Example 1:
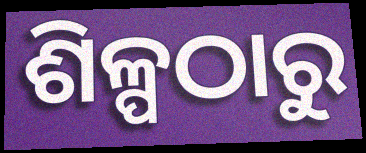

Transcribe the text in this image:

ଶିଳ୍ପଠାରୁ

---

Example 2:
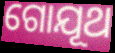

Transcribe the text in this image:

ଗୋଯୂଥ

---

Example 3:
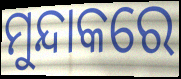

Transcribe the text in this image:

ମୁନ୍ଦାକରେ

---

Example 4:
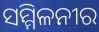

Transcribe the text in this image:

ସମ୍ମିଳନୀର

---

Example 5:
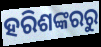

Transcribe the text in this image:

ହରିଶଙ୍କରରୁ